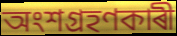
অংশগ্ৰহণকাৰী